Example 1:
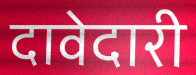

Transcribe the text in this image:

दावेदारी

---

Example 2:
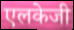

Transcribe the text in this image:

एलकेजी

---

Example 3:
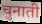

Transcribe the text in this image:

चुनाती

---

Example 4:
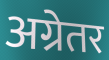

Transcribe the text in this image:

अग्रेतर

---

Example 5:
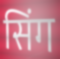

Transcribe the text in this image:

सिंग